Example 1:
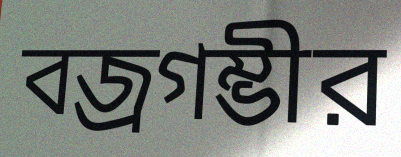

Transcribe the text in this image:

বজ্রগম্ভীর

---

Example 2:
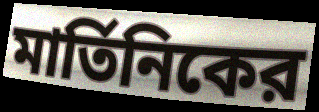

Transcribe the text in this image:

মার্তিনিকের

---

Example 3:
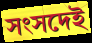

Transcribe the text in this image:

সংসদেই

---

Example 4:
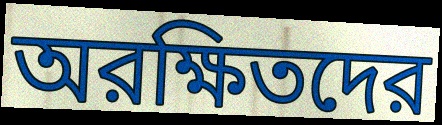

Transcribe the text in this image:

অরক্ষিতদের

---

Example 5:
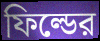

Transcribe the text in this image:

ফিল্ডের